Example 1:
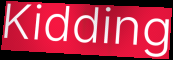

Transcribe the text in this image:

Kidding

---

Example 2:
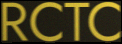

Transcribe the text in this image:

RCTC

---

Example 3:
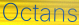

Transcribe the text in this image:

Octans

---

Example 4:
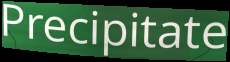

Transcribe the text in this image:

Precipitate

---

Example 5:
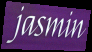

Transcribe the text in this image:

jasmin